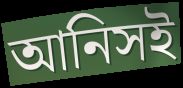
আনিসই